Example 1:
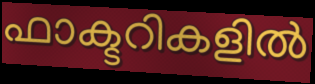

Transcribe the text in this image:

ഫാക്ടറികളിൽ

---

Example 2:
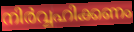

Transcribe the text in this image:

നിർവ്വഹിക്കണം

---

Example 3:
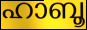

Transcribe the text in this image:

ഹാബൂ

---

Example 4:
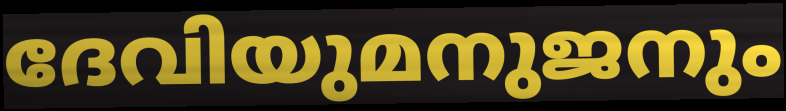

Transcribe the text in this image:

ദേവിയുമനുജനും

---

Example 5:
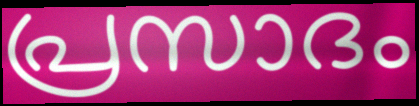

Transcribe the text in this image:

പ്രസാദം